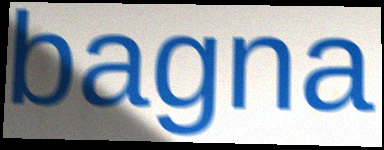
bagna